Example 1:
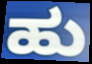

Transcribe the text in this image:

ಹು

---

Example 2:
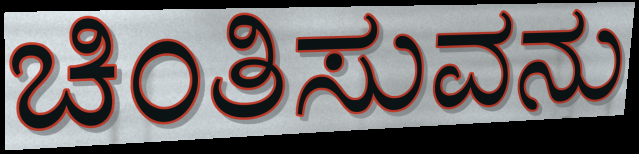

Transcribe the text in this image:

ಚಿಂತಿಸುವನು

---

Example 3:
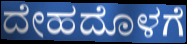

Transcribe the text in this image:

ದೇಹದೊಳಗೆ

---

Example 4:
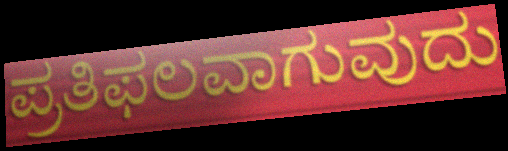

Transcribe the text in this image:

ಪ್ರತಿಫಲವಾಗುವುದು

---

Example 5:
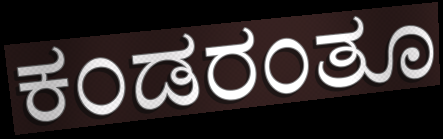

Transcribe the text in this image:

ಕಂಡರಂತೂ